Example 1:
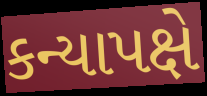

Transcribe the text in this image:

કન્યાપક્ષે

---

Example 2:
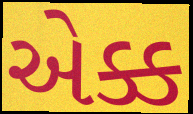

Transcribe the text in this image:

એક્ક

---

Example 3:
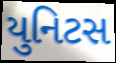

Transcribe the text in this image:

યુનિટસ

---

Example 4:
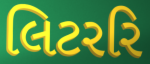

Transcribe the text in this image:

લિટરરિ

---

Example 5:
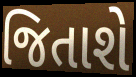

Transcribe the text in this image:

જિતાશે